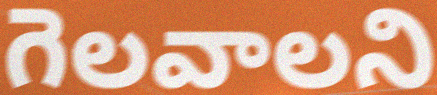
గెలవాలని